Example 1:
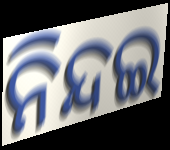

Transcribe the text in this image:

ନିନ୍ଦଇ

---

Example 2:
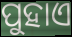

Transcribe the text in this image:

ପୁହାଏ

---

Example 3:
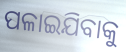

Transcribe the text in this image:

ପଳାଇଯିବାକୁ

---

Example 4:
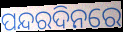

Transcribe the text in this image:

ପନ୍ଦରଦିନରେ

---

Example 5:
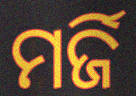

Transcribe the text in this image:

ମର୍ଜି